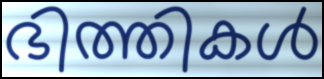
ഭിത്തികൾ